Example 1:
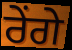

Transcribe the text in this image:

ਰੇਂਗੇ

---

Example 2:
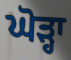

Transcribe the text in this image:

ਘੋੜ੍ਹਾ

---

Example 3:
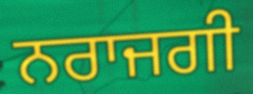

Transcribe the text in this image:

ਨਰਾਜਗੀ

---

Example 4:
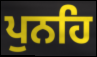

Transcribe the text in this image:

ਪੁਨਹਿ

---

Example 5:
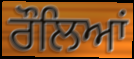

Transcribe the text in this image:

ਰੌਲਿਆਂ